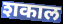
शकाल